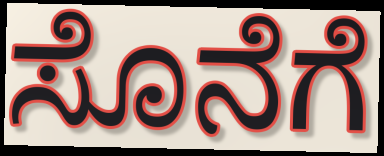
ಸೊನೆಗೆ